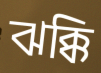
ঝক্কি